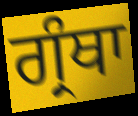
ਗ੍ਰੰਥਾ